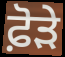
ਫ਼ੋੜੇ